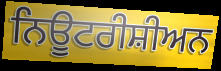
ਨਿਊਟਰੀਸ਼ੀਅਨ